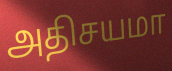
அதிசயமா